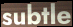
subtle